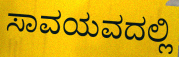
ಸಾವಯವದಲ್ಲಿ